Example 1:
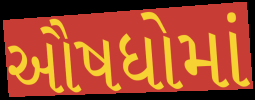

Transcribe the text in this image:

ઔષધોમાં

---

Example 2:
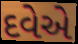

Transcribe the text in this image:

દવેએ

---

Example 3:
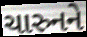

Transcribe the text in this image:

ચારુનને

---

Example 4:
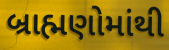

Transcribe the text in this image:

બ્રાહ્મણોમાંથી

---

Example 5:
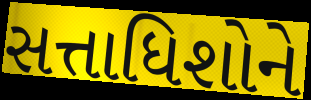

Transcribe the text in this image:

સત્તાધિશોને